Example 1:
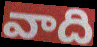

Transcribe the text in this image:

వాది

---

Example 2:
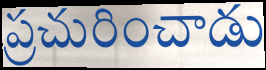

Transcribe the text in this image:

ప్రచురించాడు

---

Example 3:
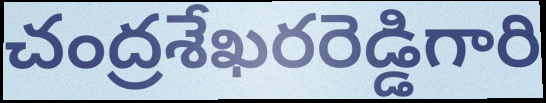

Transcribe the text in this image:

చంద్రశేఖరరెడ్డిగారి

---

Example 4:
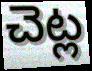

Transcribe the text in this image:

చెట్ల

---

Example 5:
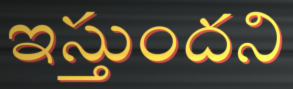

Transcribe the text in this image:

ఇస్తుందని